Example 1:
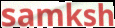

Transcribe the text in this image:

samksh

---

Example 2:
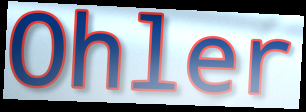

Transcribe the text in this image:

Ohler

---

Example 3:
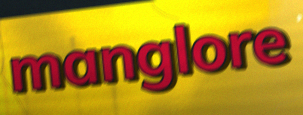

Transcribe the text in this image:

manglore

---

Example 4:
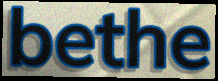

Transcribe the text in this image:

bethe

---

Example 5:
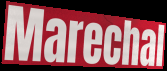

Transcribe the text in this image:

Marechal